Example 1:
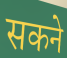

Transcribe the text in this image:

सकने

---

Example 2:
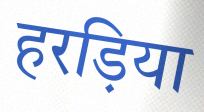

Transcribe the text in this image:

हरड़िया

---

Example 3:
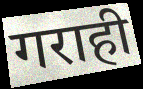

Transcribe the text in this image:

गराही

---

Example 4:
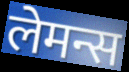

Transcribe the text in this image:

लेमन्स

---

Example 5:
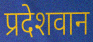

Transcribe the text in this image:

प्रदेशवान